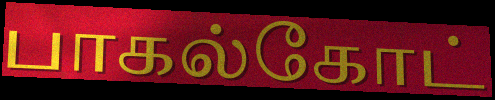
பாகல்கோட்